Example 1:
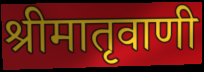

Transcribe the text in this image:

श्रीमातृवाणी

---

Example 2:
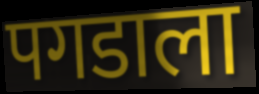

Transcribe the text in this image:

पगडाला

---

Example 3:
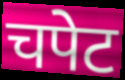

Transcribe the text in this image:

चपेट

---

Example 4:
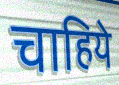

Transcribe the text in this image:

चाहिये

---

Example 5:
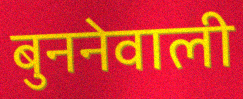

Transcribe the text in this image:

बुननेवाली